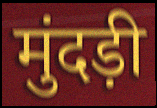
मुंदड़ी